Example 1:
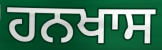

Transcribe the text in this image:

ਹਨਖਾਸ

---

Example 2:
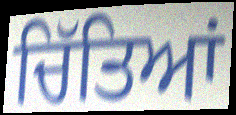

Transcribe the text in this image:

ਚਿੱਤਿਆਂ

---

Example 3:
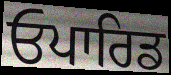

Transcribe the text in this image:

ਓਪਾਰਿਡ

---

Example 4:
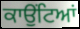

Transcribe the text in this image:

ਕਾਉਂਟਿਆਂ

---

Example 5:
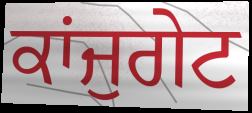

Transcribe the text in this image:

ਕਾਂਜੁਗੇਟ